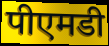
पीएमडी